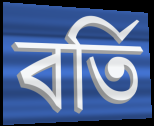
বৰ্তি